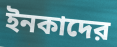
ইনকাদের